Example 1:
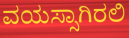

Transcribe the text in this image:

ವಯಸ್ಸಾಗಿರಲಿ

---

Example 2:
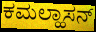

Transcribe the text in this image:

ಕಮಲ್ಹಾಸನ್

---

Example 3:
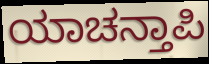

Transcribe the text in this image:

ಯಾಚನ್ತಾಪಿ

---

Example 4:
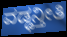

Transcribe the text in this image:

ವಡ್ಢನ್ತೀತಿ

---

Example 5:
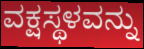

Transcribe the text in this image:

ವಕ್ಷಸ್ಥಳವನ್ನು